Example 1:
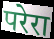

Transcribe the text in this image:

परेरा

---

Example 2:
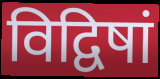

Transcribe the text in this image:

विद्विषां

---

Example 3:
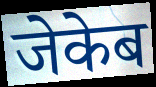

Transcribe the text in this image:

जेकेब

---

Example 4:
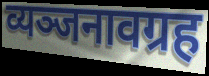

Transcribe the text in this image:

व्यञ्जनावग्रह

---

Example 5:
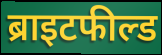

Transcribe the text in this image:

ब्राइटफील्ड